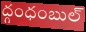
ద్గంధంబుల్